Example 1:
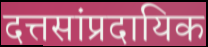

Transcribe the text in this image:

दत्तसांप्रदायिक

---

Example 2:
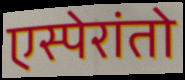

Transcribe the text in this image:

एस्पेरांतो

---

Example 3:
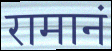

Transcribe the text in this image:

रामानं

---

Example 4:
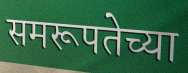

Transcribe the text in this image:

समरूपतेच्या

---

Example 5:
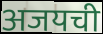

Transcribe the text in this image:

अजयची